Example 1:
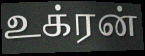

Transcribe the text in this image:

உக்ரன்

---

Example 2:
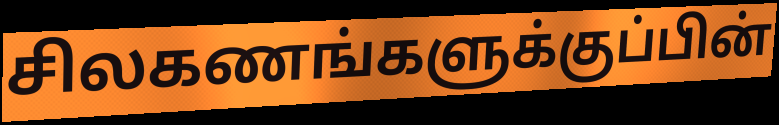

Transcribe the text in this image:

சிலகணங்களுக்குப்பின்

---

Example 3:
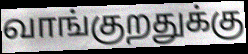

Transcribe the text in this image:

வாங்குறதுக்கு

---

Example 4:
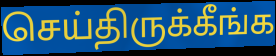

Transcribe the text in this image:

செய்திருக்கீங்க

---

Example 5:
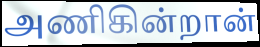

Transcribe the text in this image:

அணிகின்றான்